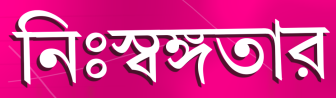
নিঃস্বঙ্গতার